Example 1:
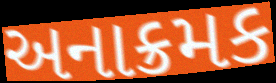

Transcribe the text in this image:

અનાક્રમક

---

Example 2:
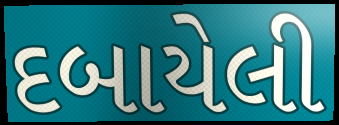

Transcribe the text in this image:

દબાયેલી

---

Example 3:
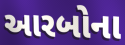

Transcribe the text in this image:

આરબોના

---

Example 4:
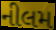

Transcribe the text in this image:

નીલમ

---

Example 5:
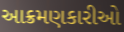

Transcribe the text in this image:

આક્રમણકારીઓ